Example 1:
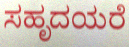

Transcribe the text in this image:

ಸಹೃದಯರೆ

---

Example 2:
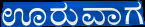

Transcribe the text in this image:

ಊರುವಾಗ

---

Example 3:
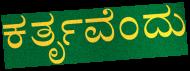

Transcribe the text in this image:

ಕರ್ತೃವೆಂದು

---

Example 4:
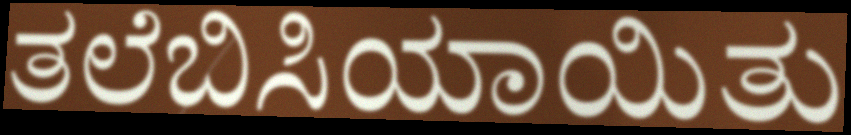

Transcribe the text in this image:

ತಲೆಬಿಸಿಯಾಯಿತು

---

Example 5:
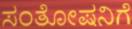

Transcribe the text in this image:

ಸಂತೋಷನಿಗೆ